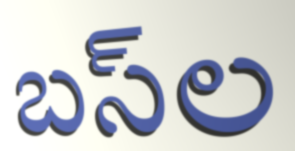
బస్‌ల